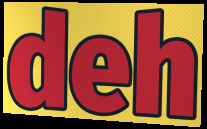
deh